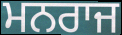
ਮਨਰਾਜ